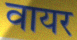
वायर